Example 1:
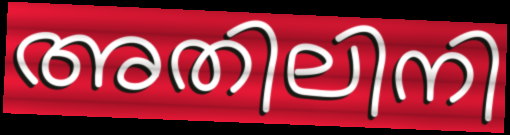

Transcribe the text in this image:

അതിലിനി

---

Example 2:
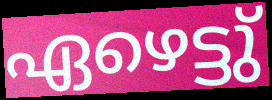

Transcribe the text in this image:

ഏഴെട്ടു്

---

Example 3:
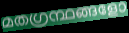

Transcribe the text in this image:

മതഗ്രന്ഥങ്ങളോ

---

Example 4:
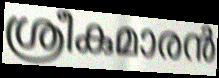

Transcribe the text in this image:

ശ്രീകുമാരൻ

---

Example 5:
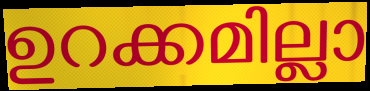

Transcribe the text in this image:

ഉറക്കമില്ലാ